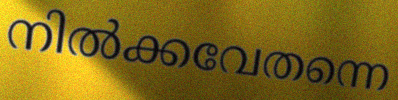
നിൽക്കവേതന്നെ